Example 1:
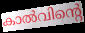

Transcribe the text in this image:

കാൽവിന്റെ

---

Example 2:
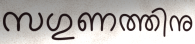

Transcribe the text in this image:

സഗുണത്തിനു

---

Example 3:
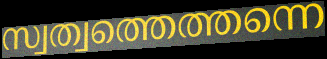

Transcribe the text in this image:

സ്വത്വത്തെത്തന്നെ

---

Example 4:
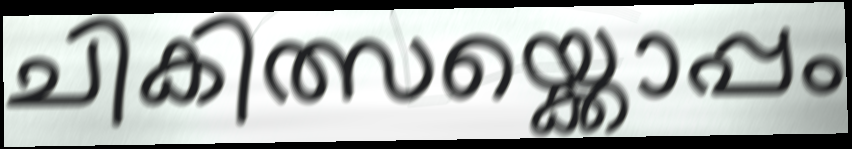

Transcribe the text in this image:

ചികിത്സയ്ക്കൊപ്പം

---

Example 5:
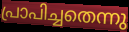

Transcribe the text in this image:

പ്രാപിച്ചതെന്നു